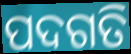
ପଦଗତି